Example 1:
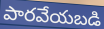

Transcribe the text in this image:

పారవేయబడి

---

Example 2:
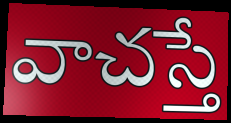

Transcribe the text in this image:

వాచస్తే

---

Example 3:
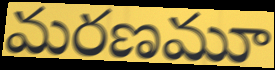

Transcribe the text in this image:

మరణమూ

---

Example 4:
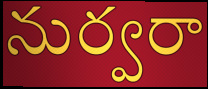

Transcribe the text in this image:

నుర్వరా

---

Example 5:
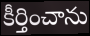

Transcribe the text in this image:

కీర్తించాను